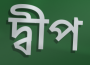
দ্বীপ